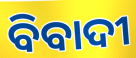
ବିବାଦୀ